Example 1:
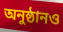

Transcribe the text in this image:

অনুষ্ঠানও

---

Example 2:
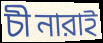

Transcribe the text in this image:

চীনারাই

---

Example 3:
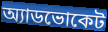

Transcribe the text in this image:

অ্যাডভোকেট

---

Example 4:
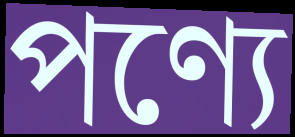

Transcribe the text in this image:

পণ্যে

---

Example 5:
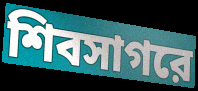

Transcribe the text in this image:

শিবসাগরে